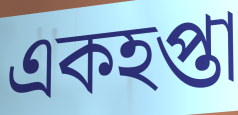
একহপ্তা